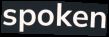
spoken